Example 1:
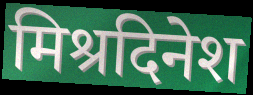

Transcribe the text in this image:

मिश्रदिनेश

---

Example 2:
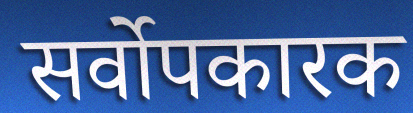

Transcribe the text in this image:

सर्वोपकारक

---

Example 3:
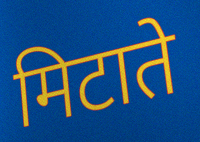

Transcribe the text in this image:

मिटाते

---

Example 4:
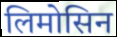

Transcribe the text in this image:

लिमोसिन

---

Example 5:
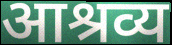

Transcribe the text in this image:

आश्रव्य